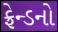
ફ્રેન્ડનો